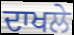
ਦਾਖਲੇ